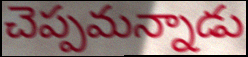
చెప్పమన్నాడు